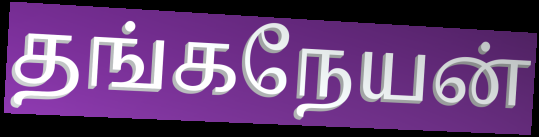
தங்கநேயன்